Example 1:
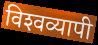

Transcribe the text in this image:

विश्‍वव्यापी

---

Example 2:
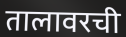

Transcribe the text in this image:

तालावरची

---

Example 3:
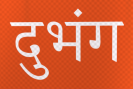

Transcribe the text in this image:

दुभंग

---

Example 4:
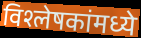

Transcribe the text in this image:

विश्लेषकांमध्ये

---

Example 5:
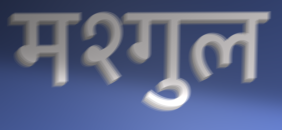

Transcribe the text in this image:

मश्गुल